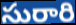
సురారి